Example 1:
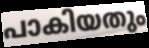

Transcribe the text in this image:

പാകിയതും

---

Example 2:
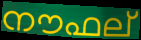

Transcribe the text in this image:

നൗഫല്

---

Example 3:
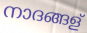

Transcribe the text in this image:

നാദങ്ങള്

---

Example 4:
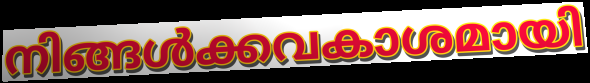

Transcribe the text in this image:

നിങ്ങൾക്കവകാശമായി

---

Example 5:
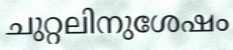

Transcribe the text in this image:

ചുറ്റലിനുശേഷം